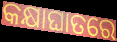
କକ୍ଷାଘାତରେ